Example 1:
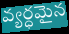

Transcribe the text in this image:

వ్యర్ధమైన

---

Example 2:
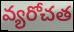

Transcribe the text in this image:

వ్యరోచత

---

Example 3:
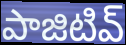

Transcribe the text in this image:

పాజిటివ్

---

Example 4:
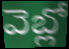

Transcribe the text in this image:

వెబ్లో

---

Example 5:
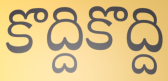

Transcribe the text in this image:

కొద్దికొద్ది